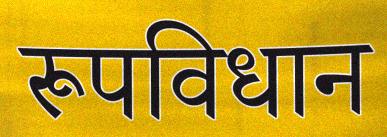
रूपविधान